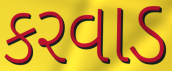
કરવાડ